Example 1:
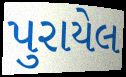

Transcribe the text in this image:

પુરાયેલ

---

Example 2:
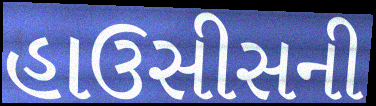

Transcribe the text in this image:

હાઉસીસની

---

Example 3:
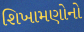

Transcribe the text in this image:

શિખામણોનો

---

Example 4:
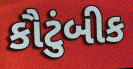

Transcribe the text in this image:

કૌટુંબીક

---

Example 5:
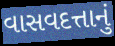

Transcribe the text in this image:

વાસવદત્તાનું